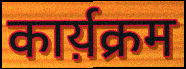
कार्य़क्रम